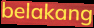
belakang